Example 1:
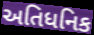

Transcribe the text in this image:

અતિધનિક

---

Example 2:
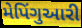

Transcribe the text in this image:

મેપિંગુઆરી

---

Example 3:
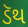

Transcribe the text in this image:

ડૅથ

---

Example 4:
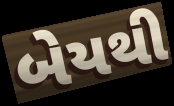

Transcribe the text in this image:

બેયથી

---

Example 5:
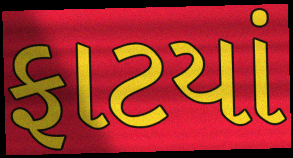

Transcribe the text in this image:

ફાટયાં